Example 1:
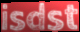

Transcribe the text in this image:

isdst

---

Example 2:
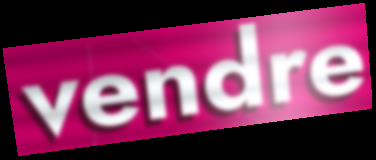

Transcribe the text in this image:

vendre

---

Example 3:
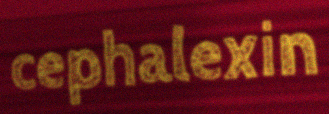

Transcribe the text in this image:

cephalexin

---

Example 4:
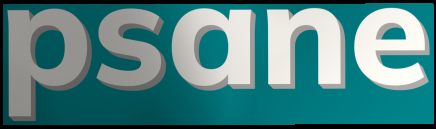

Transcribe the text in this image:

psane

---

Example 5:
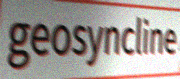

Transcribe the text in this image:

geosyncline